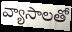
వ్యాసాలతో